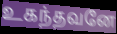
உகந்தவனே